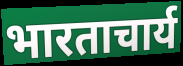
भारताचार्य